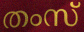
തംസ്